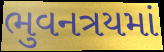
ભુવનત્રયમાં